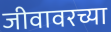
जीवावरच्या